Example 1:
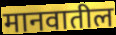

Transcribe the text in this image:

मानवातील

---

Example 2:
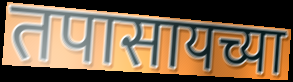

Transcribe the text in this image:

तपासायच्या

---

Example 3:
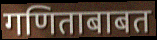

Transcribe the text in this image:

गणिताबाबत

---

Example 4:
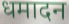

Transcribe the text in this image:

धमादन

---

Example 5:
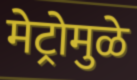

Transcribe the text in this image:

मेट्रोमुळे